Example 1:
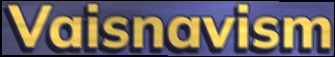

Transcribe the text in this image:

Vaisnavism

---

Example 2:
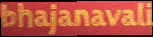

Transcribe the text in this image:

bhajanavali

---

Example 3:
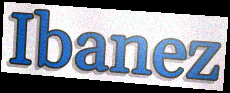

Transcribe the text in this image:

Ibanez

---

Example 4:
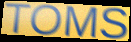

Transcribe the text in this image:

TOMS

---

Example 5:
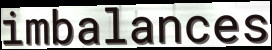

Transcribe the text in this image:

imbalances